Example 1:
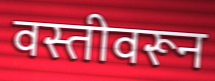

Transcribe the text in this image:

वस्तीवरून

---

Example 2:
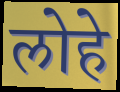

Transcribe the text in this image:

लोहे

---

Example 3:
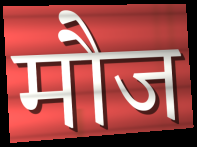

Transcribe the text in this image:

मौज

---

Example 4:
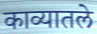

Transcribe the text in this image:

काव्यातले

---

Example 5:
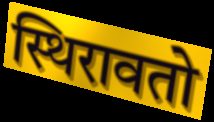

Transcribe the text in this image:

स्थिरावतो